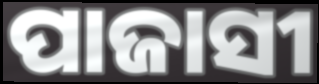
ପାଜାସୀ